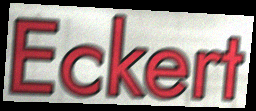
Eckert